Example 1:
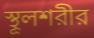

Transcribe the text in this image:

স্থূলশরীর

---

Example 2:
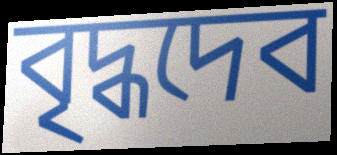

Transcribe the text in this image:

বৃদ্ধদেব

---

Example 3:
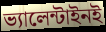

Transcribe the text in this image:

ভ্যালেন্টাইনই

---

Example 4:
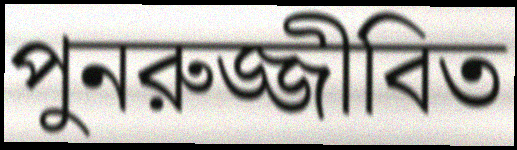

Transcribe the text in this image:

পুনরুজ্জীবিত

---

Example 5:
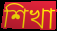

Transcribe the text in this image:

শিখা